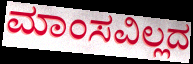
ಮಾಂಸವಿಲ್ಲದ